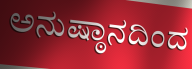
ಅನುಷ್ಠಾನದಿಂದ